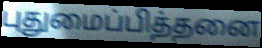
புதுமைப்பித்தனை